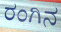
ರಂಗಿನ